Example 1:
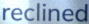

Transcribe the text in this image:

reclined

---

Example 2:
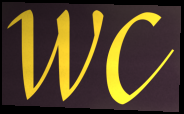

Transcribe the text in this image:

wc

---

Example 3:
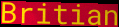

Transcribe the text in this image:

Britian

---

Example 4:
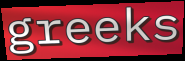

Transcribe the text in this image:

greeks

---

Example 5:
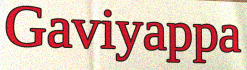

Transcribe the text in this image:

Gaviyappa